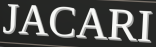
JACARI